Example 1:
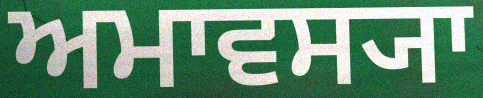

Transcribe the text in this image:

ਅਮਾਵਸ੍ਯਾ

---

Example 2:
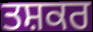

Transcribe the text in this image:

ਤਸ਼ਕਰ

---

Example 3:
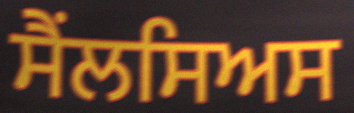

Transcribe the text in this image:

ਸੈਂਲਸਿਅਸ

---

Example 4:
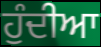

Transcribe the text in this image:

ਹੁੰਦੀਆ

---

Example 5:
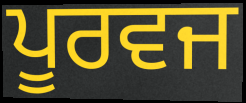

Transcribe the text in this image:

ਪੂਰਵਜ